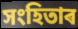
সংহিতাৰ